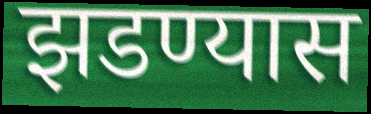
झडण्यास